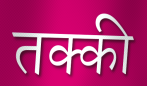
तक्की